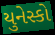
યુનેસ્કો